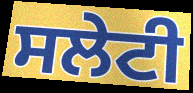
ਸਲੇਟੀ